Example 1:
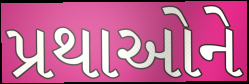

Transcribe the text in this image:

પ્રથાઓને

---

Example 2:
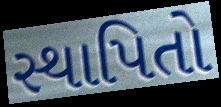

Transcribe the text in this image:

સ્થાપિતો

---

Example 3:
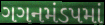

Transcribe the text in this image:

ગગનમંડપમાં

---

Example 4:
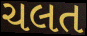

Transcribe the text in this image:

ચલત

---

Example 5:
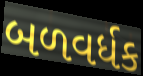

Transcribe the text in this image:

બળવર્ધક